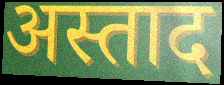
अस्ताद